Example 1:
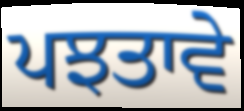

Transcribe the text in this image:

ਪਝਤਾਵੇ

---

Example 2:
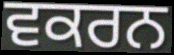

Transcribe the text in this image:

ਵਕਰਨ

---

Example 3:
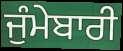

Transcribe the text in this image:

ਜੁੰਮੇਬਾਰੀ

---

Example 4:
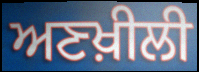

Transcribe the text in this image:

ਅਣਖ਼ੀਲੀ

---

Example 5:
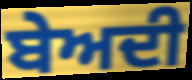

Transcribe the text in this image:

ਬੇਅਦੀ